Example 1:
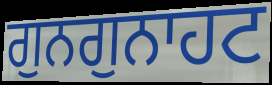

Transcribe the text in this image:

ਗੁਨਗੁਨਾਹਟ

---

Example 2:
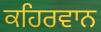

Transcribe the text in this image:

ਕਹਿਰਵਾਨ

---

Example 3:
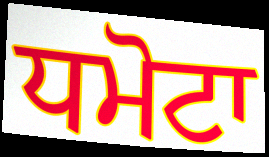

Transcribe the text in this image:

ਧਮੋਟਾ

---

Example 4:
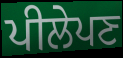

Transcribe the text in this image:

ਪੀਲੇਪਣ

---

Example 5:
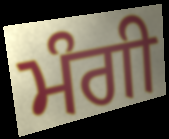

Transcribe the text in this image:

ਮੰਗੀ